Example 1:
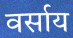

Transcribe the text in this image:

वर्साय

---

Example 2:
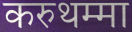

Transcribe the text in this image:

करुथम्मा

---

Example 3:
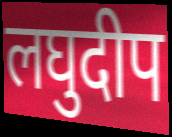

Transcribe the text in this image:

लघुदीप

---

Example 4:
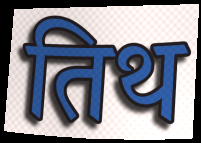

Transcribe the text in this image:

तिथ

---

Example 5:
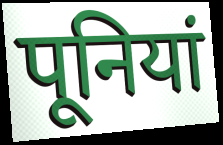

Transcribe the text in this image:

पूनियां